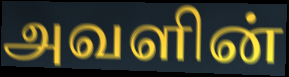
அவளின்